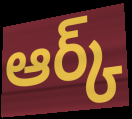
ఆర్క్